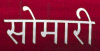
सोमारी